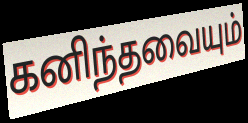
கனிந்தவையும்